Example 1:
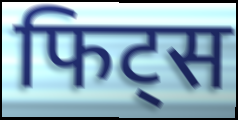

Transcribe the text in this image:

फिट्स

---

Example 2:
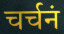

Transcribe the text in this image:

चर्चनं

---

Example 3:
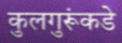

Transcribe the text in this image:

कुलगुरूंकडे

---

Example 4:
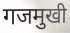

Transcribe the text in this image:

गजमुखी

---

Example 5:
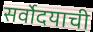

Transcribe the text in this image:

सर्वोदयाची